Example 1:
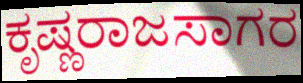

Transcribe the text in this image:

ಕೃಷ್ಣರಾಜಸಾಗರ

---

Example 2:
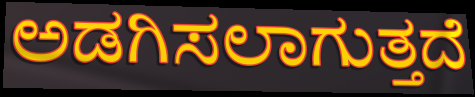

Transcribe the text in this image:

ಅಡಗಿಸಲಾಗುತ್ತದೆ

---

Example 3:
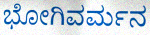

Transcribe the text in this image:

ಭೋಗಿವರ್ಮನ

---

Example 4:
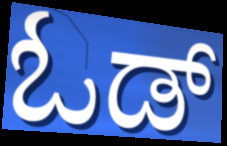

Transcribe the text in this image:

ಓಡ್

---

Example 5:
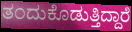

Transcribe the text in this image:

ತಂದುಕೊಡುತ್ತಿದ್ದಾರೆ